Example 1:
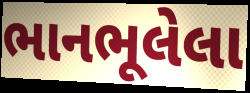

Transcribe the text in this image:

ભાનભૂલેલા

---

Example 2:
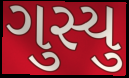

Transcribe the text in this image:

ગુસ્યુ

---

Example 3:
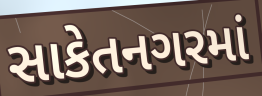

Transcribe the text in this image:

સાકેતનગરમાં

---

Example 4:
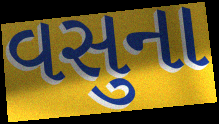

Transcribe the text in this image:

વસુના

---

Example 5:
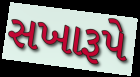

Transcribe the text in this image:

સખારૂપે